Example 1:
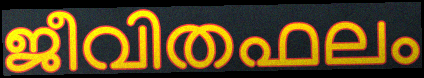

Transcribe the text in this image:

ജീവിതഫലം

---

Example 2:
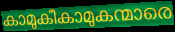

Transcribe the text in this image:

കാമുകീകാമുകന്മാരെ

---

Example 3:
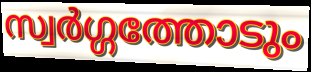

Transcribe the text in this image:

സ്വർഗ്ഗത്തോടും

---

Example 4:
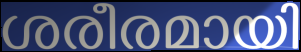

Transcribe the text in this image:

ശരീരമായി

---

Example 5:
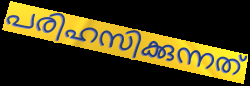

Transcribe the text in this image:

പരിഹസിക്കുന്നത്